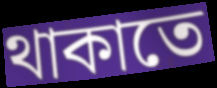
থাকাতে